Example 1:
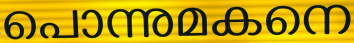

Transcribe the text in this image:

പൊന്നുമകനെ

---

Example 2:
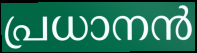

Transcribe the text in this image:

പ്രധാനൻ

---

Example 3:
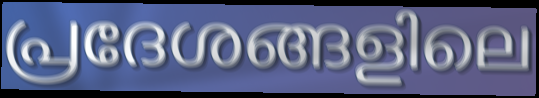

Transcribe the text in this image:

പ്രദേശങ്ങളിലെ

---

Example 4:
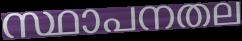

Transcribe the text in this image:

സ്ഥാപനതല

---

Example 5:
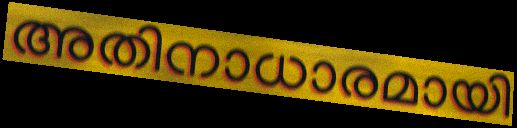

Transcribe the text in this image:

അതിനാധാരമായി